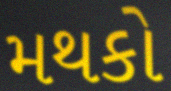
મથકો